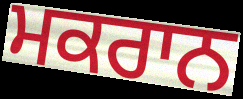
ਮਕਰਾਨ